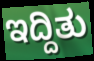
ಇದ್ದಿತು